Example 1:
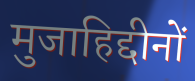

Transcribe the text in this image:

मुजाहिद्दीनों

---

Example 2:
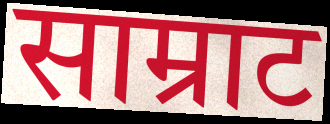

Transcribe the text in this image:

साम्राट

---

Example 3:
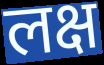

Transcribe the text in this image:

लक्ष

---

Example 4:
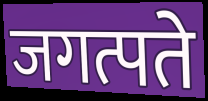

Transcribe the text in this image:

जगत्पते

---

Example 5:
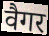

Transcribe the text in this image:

वैगर